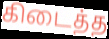
கிடைத்த